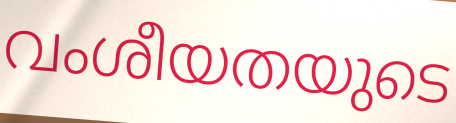
വംശീയതയുടെ